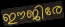
ഈജിരേ